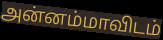
அன்னம்மாவிடம்